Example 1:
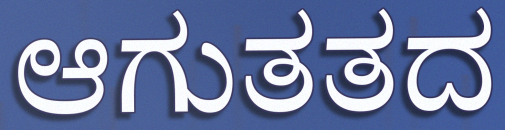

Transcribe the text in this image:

ಆಗುತತದ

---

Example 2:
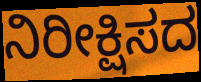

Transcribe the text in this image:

ನಿರೀಕ್ಷಿಸದ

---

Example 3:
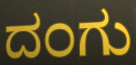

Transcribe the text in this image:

ದಂಗು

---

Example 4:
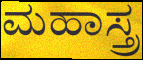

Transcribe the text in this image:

ಮಹಾಸ್ತ್ರ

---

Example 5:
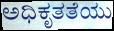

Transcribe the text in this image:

ಅಧಿಕೃತತೆಯು